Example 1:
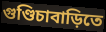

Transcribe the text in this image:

গুণ্ডিচাবাড়িতে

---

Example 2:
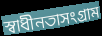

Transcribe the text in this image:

স্বাধীনতাসংগ্রাম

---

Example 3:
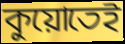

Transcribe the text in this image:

কুয়োতেই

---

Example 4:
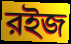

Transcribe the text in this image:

রইজ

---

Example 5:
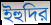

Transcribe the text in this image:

ইহুদির